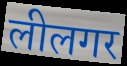
लीलगर